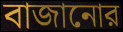
বাজানোর